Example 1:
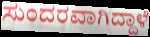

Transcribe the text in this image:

ಸುಂದರವಾಗಿದ್ದಾಳೆ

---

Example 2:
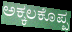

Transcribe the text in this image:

ಅಕ್ಕಲಕೊಪ್ಪ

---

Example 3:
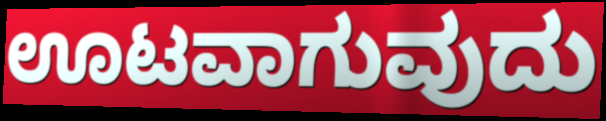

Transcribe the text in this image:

ಊಟವಾಗುವುದು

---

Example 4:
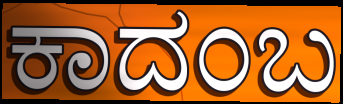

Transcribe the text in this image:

ಕಾದಂಬ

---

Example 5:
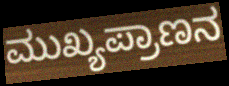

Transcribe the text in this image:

ಮುಖ್ಯಪ್ರಾಣನ